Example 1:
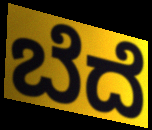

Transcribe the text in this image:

ಬೆದೆ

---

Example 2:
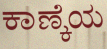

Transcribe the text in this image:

ಕಾಣ್ಕೆಯ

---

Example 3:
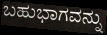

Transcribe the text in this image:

ಬಹುಭಾಗವನ್ನು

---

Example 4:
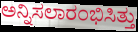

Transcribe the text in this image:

ಅನ್ನಿಸಲಾರಂಭಿಸಿತ್ತು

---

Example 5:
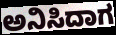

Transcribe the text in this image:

ಅನಿಸಿದಾಗ